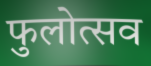
फुलोत्सव